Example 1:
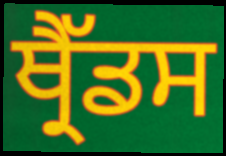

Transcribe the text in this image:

ਥ੍ਰੈੱਡਸ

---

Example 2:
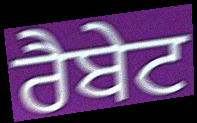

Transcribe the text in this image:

ਰੈਬੇਟ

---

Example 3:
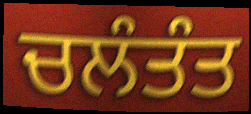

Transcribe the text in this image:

ਚਲੰਤੰਤ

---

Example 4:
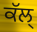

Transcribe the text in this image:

ਕੱਲ੍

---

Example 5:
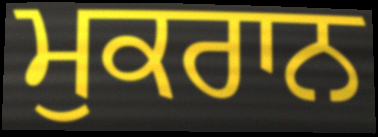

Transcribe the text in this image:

ਮੁਕਰਾਨ